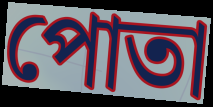
পোতা